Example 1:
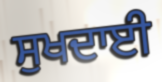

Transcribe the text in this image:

ਸੁਖਦਾਈ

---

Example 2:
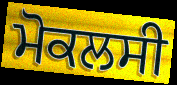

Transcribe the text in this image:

ਮੋਕਲਸੀ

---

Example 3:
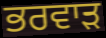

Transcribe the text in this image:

ਭਰਵਾੜ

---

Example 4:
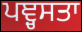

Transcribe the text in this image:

ਪਞ੍ਚਸਤਾ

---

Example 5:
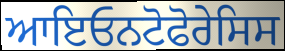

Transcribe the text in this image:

ਆਇਓਨਟੋਫੋਰੇਸਿਸ